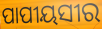
ପାପୀୟସୀର